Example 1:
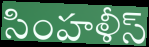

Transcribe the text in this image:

సింహళీస్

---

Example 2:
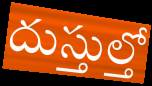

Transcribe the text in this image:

దుస్తుల్తో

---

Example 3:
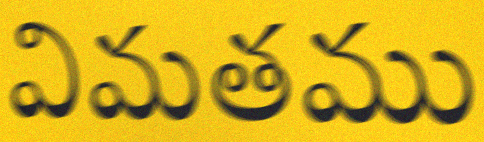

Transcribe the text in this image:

విమతము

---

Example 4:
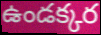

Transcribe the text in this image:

ఉండక్కర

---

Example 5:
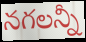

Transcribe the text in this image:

నగలన్నీ